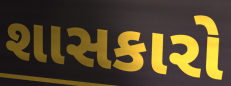
શાસકારો